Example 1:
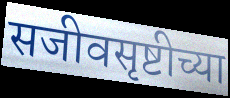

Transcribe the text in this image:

सजीवसृष्टीच्या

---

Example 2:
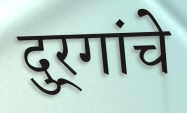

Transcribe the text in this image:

दुर्गांचे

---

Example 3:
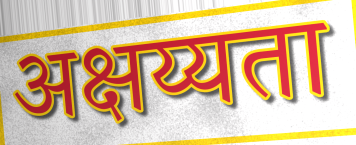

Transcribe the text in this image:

अक्षय्यता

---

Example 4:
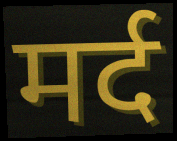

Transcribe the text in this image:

मर्द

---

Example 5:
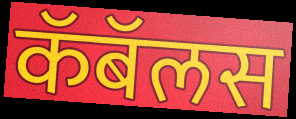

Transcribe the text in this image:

कॅबॅलस